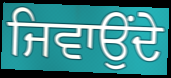
ਜਿਵਾਉਂਦੇ